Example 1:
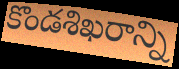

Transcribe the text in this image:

కొండశిఖరాన్ని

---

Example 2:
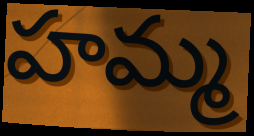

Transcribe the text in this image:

హమ్మ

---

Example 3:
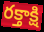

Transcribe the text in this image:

రక్తాక్షి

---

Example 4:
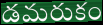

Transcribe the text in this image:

డమరుకం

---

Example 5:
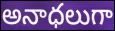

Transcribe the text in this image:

అనాధలుగా